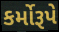
કર્મોરૂપે